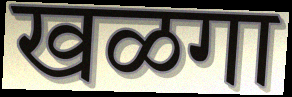
खळगा